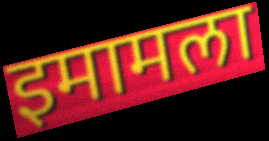
इमामला